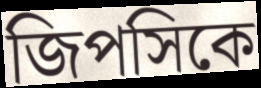
জিপসিকে